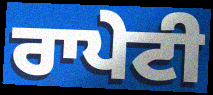
ਰਾਪੇਟੀ